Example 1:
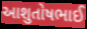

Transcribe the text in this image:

આશુતોષભાઈ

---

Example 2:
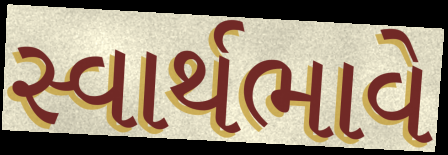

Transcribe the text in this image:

સ્વાર્થભાવે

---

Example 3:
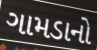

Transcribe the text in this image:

ગામડાનો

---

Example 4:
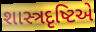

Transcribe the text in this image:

શાસ્ત્રદૃષ્ટિએ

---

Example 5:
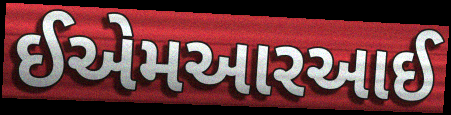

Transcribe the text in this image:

ઈએમઆરઆઈ